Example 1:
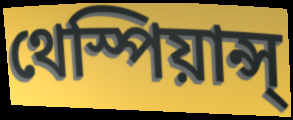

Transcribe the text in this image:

থেস্পিয়ান্স্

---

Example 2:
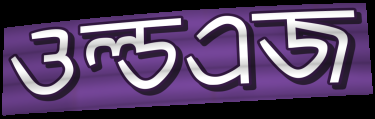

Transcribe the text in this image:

ওল্ডএজ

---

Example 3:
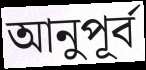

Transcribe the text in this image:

আনুপূর্ব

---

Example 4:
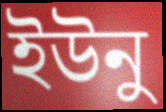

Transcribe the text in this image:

ইউনু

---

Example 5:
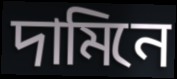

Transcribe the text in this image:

দামিনে